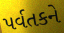
પર્વતકને